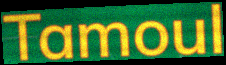
Tamoul